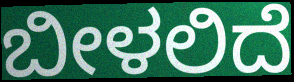
ಬೀಳಲಿದೆ